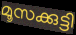
മൂസക്കുട്ടി